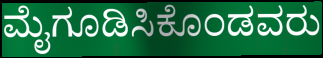
ಮೈಗೂಡಿಸಿಕೊಂಡವರು